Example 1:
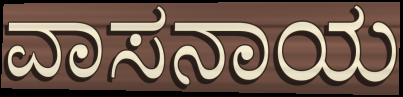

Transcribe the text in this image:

ವಾಸನಾಯ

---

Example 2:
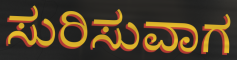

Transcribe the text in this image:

ಸುರಿಸುವಾಗ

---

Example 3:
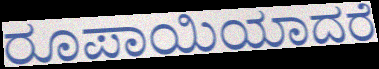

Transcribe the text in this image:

ರೂಪಾಯಿಯಾದರೆ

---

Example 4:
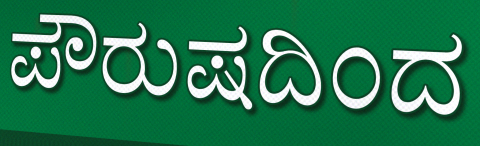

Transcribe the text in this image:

ಪೌರುಷದಿಂದ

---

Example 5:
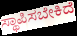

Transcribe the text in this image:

ಸ್ಥಾಪಿಸಬೇಕಿದೆ